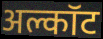
अल्कॉट